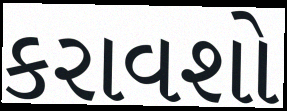
કરાવશો